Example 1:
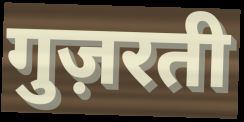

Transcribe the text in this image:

गुज़रती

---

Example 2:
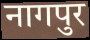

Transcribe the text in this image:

नागपुर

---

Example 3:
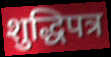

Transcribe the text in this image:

शुद्धिपत्र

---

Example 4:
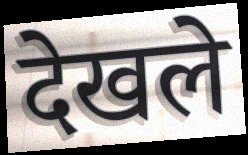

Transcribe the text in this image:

देखले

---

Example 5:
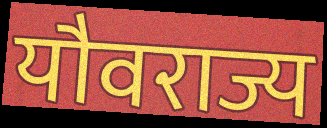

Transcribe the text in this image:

यौवराज्य